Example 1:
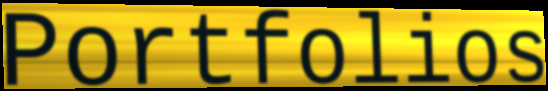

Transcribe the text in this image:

Portfolios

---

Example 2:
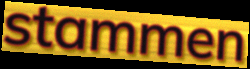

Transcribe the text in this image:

stammen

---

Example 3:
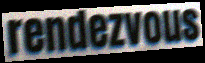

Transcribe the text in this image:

rendezvous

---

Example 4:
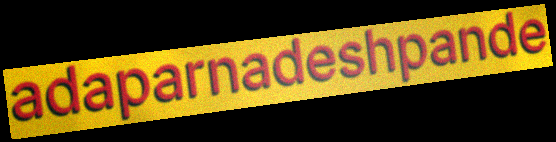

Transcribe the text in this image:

adaparnadeshpande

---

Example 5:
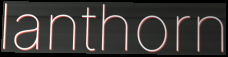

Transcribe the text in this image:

lanthorn